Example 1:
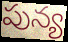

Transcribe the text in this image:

పున్య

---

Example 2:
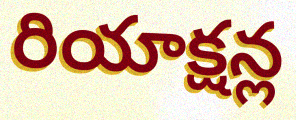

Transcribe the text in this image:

రియాక్షన్ల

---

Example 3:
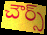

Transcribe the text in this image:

చౌర్స్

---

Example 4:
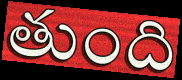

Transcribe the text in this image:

తుంది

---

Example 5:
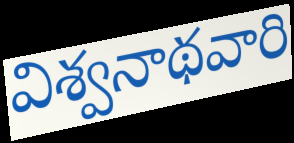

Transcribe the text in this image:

విశ్వనాథవారి